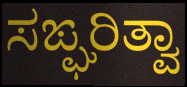
ಸಙ್ಘರಿತ್ವಾ